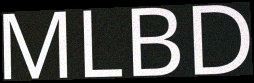
MLBD